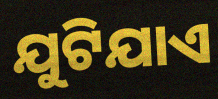
ଯୁଟିଯାଏ